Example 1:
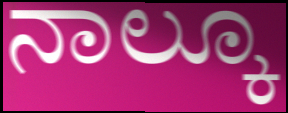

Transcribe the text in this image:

ನಾಲ್ಕೂ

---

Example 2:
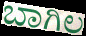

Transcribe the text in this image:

ಬಾಗಿಲ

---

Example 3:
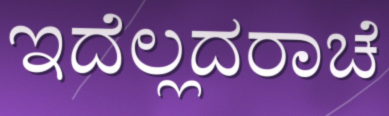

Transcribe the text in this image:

ಇದೆಲ್ಲದರಾಚೆ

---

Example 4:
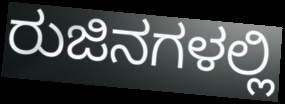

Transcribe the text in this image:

ರುಜಿನಗಳಲ್ಲಿ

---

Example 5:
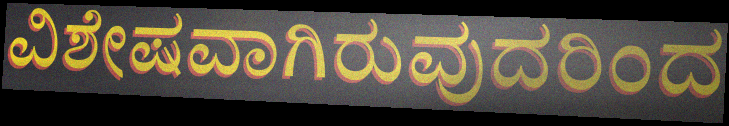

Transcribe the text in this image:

ವಿಶೇಷವಾಗಿರುವುದರಿಂದ